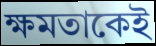
ক্ষমতাকেই